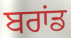
ਬਰਾਂਡ